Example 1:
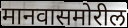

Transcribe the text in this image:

मानवासमोरील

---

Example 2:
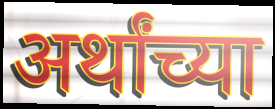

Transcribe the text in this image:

अर्थांच्या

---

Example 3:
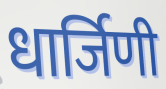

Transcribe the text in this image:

धार्जिणी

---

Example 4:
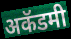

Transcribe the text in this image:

अकॅडमी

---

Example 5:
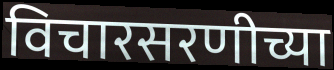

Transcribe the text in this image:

विचारसरणीच्या